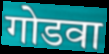
गोडवा